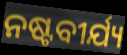
ନଷ୍ଟବୀର୍ଯ୍ୟ